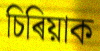
চিৰিয়াক